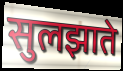
सुलझाते